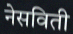
नेसविती